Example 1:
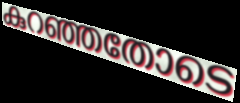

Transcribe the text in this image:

കുറഞ്ഞതോടെ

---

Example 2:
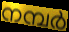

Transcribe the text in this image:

നമ്പർ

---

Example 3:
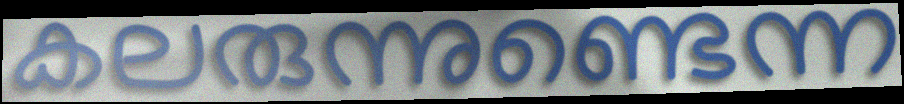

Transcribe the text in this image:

കലരുന്നുണ്ടെന്ന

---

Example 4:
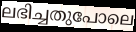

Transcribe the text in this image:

ലഭിച്ചതുപോലെ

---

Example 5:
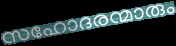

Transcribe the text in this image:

സഹോദരന്മാരും